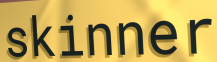
skinner